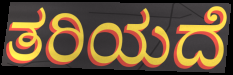
ತರಿಯದೆ